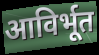
आविर्भूत